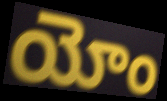
యోం